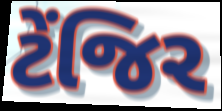
ટેંજિર